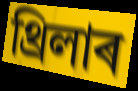
থ্ৰিলাৰ